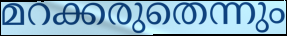
മറക്കരുതെന്നും